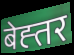
बेह्तर